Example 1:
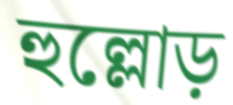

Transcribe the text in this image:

হুল্লোড়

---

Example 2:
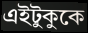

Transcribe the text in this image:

এইটুকুকে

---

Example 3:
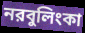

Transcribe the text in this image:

নরবুলিংকা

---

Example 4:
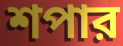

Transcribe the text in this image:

শপার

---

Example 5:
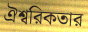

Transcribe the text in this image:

ঐশ্বরিকতার